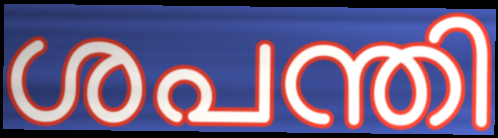
ശപന്തി